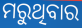
ମରୁଥିବାର